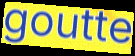
goutte